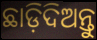
ଛାଡ଼ିଦିଅନ୍ତୁ